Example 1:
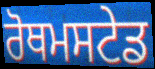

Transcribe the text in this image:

ਰੋਥਮਸਟੇਡ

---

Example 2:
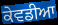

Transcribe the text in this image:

ਕੇਵਡੀਆ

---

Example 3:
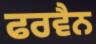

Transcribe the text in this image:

ਫਰਵੈਨ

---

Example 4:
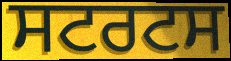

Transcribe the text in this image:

ਸਟਰਟਸ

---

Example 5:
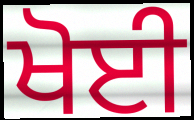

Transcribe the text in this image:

ਖੋਈ